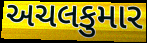
અચલકુમાર